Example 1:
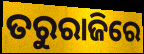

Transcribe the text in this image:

ତରୁରାଜିରେ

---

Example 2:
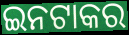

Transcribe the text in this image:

ଇନଟାକର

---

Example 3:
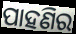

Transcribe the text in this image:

ପାହଣିର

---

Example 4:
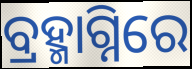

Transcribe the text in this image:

ବ୍ରହ୍ମାଗ୍ନିରେ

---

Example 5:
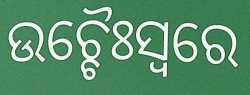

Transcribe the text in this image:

ଉଚ୍ଚୈଃସ୍ୱରେ